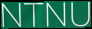
NTNU